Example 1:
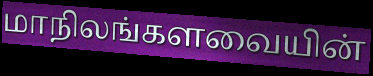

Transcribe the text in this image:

மாநிலங்களவையின்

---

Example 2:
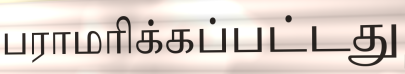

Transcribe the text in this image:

பராமரிக்கப்பட்டது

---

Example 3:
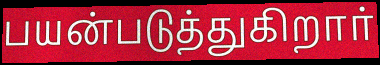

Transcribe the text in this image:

பயன்படுத்துகிறார்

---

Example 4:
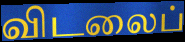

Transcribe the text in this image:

விடலைப்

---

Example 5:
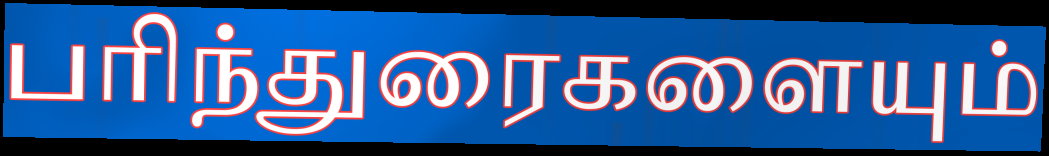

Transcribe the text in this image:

பரிந்துரைகளையும்